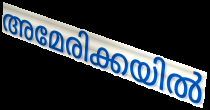
അമേരിക്കയിൽ